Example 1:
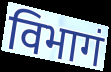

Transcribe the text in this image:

विभागं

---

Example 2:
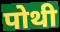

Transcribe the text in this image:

पोथी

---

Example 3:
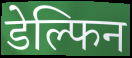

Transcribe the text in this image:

डेल्फिन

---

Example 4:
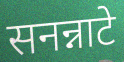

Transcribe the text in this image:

सनन्नाटे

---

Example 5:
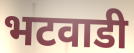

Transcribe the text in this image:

भटवाडी